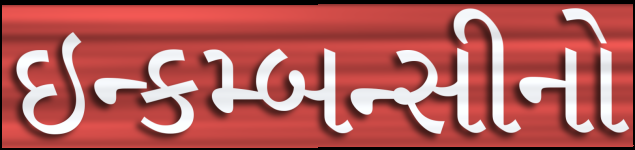
ઇન્કમ્બન્સીનો